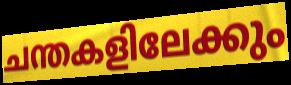
ചന്തകളിലേക്കും